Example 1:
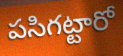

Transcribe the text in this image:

పసిగట్టారో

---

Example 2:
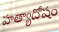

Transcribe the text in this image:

హత్యాదోషం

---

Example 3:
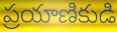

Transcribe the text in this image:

ప్రయాణికుడి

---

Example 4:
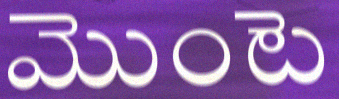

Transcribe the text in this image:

మొంటె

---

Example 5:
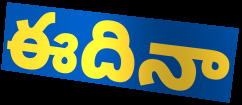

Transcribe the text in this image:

ఈదినా